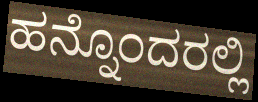
ಹನ್ನೊಂದರಲ್ಲಿ